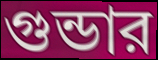
গুন্ডার